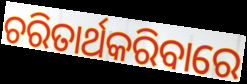
ଚରିତାର୍ଥକରିବାରେ